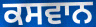
ਕਸਵਾਨ